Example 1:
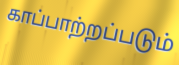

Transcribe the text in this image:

காப்பாற்றப்படும்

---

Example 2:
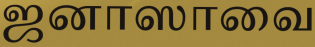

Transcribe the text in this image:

ஜனாஸாவை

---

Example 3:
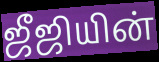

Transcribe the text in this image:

ஜீஜியின்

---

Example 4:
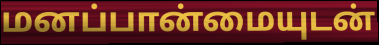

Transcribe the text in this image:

மனப்பான்மையுடன்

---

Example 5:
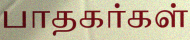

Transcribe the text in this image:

பாதகர்கள்